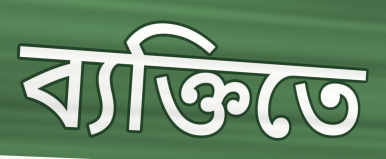
ব্যক্তিতে